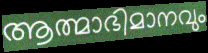
ആത്മാഭിമാനവും